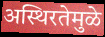
अस्थिरतेमुळे